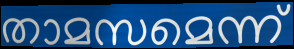
താമസമെന്ന്